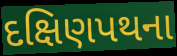
દક્ષિણપથના